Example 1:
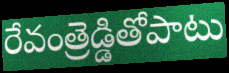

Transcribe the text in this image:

రేవంత్రెడ్డితోపాటు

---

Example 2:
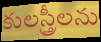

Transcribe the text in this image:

కులస్త్రీలను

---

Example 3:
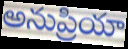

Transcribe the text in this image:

అనుప్రియా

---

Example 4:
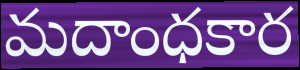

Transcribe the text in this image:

మదాంధకార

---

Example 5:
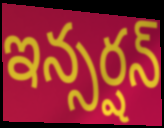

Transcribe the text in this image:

ఇన్సర్షన్